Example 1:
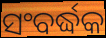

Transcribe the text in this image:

ସଂବର୍ଦ୍ଧକ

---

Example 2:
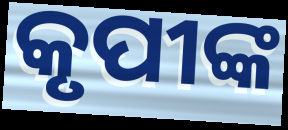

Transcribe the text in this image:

କୃପୀଙ୍କ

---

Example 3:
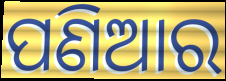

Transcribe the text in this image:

ପଣିଆର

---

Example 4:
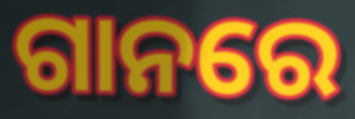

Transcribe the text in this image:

ଗାନରେ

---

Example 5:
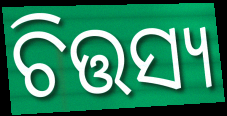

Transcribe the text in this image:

ଚିତ୍ତସ୍ୟ